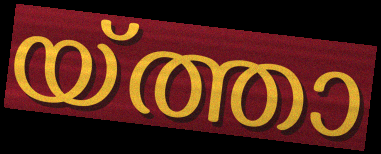
യ്ത്താ